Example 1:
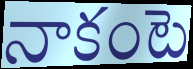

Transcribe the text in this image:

నాకంటె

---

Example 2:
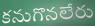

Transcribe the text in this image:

కనుగొనలేరు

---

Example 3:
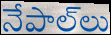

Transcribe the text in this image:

నేపాల్‌లు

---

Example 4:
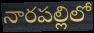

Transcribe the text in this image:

నారపల్లిలో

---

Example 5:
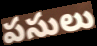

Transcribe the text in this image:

పసులు